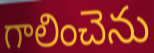
గాలించెను